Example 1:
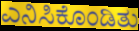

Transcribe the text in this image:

ಎನಿಸಿಕೊಂಡಿತು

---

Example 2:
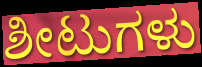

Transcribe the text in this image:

ಶೀಟುಗಳು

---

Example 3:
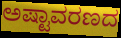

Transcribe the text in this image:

ಅಷ್ಟಾವರಣದ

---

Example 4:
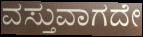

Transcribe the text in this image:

ವಸ್ತುವಾಗದೇ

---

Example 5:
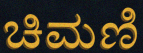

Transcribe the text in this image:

ಚಿಮಣಿ